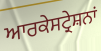
ਆਰਕੇਸਟ੍ਰੇਸ਼ਨਾਂ